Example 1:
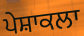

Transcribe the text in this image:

ਪੇਸ਼ਾਕਲਾ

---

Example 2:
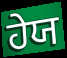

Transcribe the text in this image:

ਹੇਯ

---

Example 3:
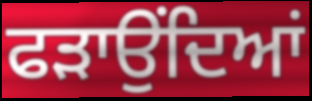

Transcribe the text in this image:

ਫੜਾਉਂਦਿਆਂ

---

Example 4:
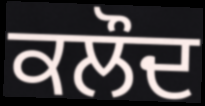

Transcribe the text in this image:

ਕਲੌਦ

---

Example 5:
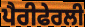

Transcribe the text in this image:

ਪੈਰੀਫੇਰਲੀ